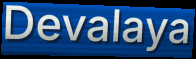
Devalaya